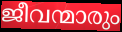
ജീവന്മാരും